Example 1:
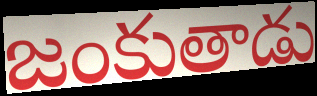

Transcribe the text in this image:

జంకుతాడు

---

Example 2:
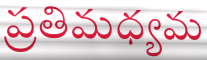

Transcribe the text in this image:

ప్రతిమధ్యమ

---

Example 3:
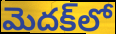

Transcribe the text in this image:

మెదక్‌లో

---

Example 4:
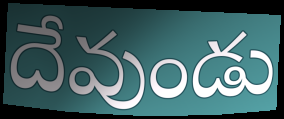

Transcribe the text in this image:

దేవుండు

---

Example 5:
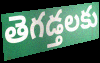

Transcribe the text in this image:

తెగడ్తలకు